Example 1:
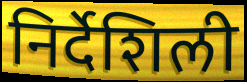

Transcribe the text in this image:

निर्देशिली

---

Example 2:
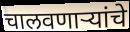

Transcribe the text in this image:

चालवणाऱ्यांचे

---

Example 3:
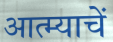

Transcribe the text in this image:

आत्म्याचें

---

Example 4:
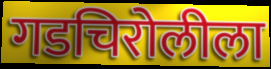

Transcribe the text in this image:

गडचिरोलीला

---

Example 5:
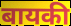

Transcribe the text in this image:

बायकी